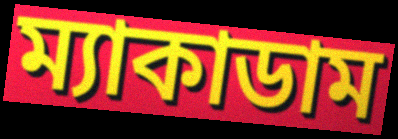
ম্যাকাডাম